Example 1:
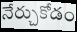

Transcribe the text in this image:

నేర్చుకోడం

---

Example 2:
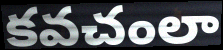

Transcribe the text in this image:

కవచంలా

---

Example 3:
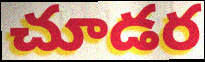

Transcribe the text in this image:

చూడర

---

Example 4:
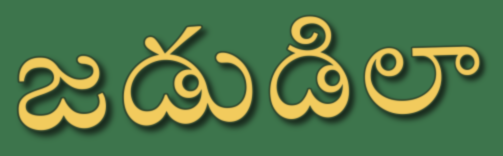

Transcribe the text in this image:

జడుడిలా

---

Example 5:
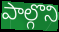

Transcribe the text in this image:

పాల్గొని